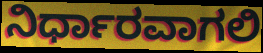
ನಿರ್ಧಾರವಾಗಲಿ